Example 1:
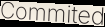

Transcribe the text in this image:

Commited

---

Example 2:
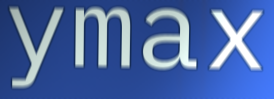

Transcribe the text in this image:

ymax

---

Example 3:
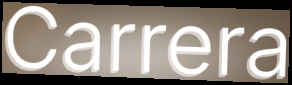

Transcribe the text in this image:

Carrera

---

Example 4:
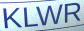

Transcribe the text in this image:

KLWR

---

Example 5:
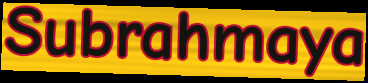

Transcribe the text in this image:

Subrahmaya